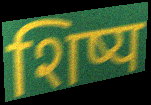
शिष्य